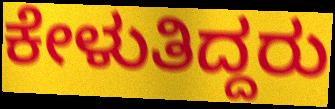
ಕೇಳುತಿದ್ದರು